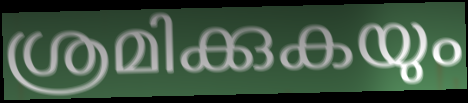
ശ്രമിക്കുകയും